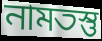
নামতস্তু